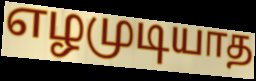
எழமுடியாத